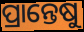
ପ୍ରାନ୍ତେଷୁ